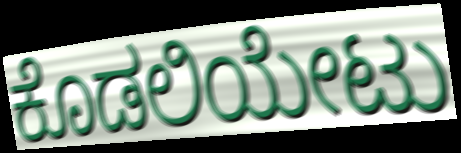
ಕೊಡಲಿಯೇಟು